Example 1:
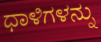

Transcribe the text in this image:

ಧಾಳಿಗಳನ್ನು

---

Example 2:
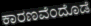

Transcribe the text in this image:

ಕಾರಣವೆಂದೊಡೆ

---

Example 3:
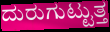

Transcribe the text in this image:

ದುರುಗುಟ್ಟುತ್ತ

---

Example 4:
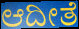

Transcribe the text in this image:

ಆದೀತೆ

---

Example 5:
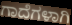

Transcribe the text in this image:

ಗಾದೆಗಳಾಗಿ